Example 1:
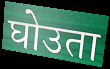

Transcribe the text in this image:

घोउता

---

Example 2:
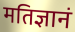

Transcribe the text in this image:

मतिज्ञानं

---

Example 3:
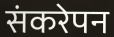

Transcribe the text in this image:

संकरेपन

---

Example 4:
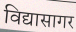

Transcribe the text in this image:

विद्यासागर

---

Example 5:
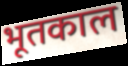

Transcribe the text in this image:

भूतकाल